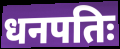
धनपतिः